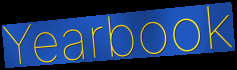
Yearbook